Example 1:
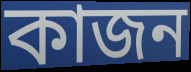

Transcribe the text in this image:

কাজন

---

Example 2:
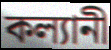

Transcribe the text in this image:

কল্যানী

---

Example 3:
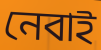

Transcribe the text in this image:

নেবাই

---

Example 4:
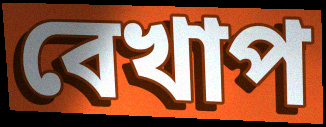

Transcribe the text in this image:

বেখাপ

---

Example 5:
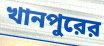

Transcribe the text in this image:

খানপুরের